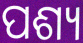
ପଶ୍ୟ